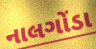
નાલગોંડા